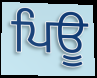
ਪਿਊ